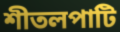
শীতলপাটি